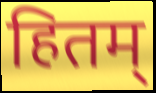
हितम्